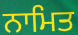
ਨਾਮਿਤ